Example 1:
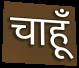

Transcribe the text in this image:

चाहूँ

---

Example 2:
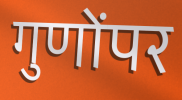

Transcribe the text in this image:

गुणोंपर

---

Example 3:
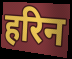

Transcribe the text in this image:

हरिन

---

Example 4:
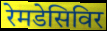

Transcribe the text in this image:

रेमडेसिविर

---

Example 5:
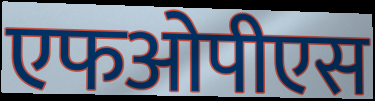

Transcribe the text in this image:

एफओपीएस